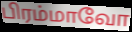
பிரம்மாவோ